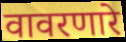
वावरणारे